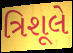
ત્રિશૂલે